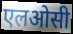
एलओसी